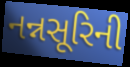
નન્નસૂરિની